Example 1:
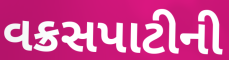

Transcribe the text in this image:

વક્રસપાટીની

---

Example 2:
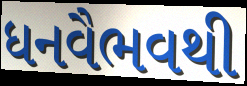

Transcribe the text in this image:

ધનવૈભવથી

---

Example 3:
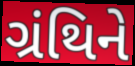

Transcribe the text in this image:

ગ્રંથિને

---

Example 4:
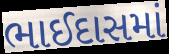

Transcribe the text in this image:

ભાઈદાસમાં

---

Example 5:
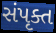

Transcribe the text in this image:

સંપૃક્ત